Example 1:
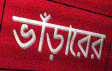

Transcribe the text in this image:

ভাঁড়ারের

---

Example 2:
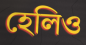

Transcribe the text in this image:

হেলিও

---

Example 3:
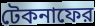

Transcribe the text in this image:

টেকনাফের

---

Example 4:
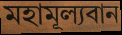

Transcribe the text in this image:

মহামূল্যবান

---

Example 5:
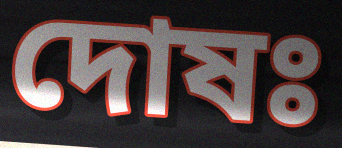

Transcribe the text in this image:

দোষঃ